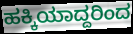
ಹಕ್ಕಿಯಾದ್ದರಿಂದ